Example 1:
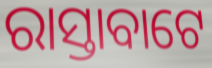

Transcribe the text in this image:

ରାସ୍ତାବାଟେ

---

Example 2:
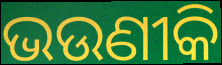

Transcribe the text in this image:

ଭଉଣୀକି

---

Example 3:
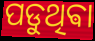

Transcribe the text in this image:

ପଡୁଥିଵା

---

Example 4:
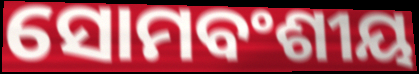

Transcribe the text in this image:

ସୋମବଂଶୀୟ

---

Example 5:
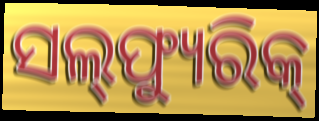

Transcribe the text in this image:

ସଲ୍‌ଫ୍ୟୁରିକ୍